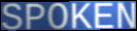
SPOKEN